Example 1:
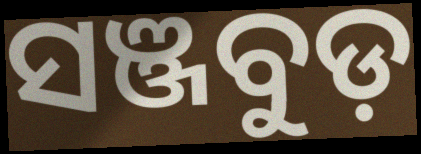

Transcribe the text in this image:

ସଞ୍ଜବୁଡ଼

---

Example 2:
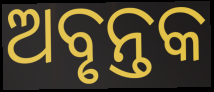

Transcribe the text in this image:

ଅବୃନ୍ତକ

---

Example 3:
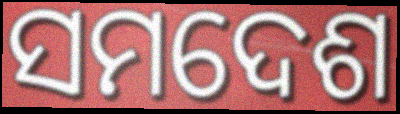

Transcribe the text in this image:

ସମଦେଶ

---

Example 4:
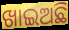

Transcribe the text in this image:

ଖାଇଅଛି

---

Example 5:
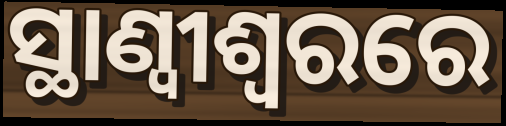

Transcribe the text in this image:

ସ୍ଥାଣ୍ୱୀଶ୍ୱରରେ